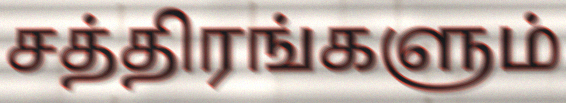
சத்திரங்களும்